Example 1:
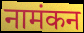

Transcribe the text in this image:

नामंकन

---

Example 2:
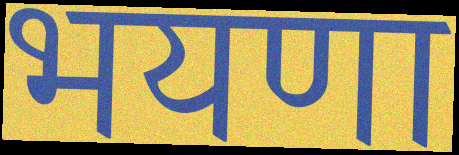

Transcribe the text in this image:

भयणा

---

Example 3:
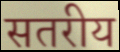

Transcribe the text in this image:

सतरीय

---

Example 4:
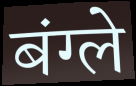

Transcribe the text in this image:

बंग्ले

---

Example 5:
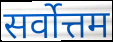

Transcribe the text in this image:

सर्वोत्तम